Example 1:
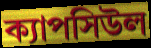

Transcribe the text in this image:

ক্যাপসিউল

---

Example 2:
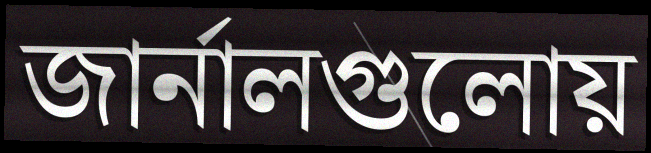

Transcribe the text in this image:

জার্নালগুলোয়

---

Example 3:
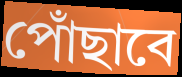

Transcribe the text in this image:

পোঁছাবে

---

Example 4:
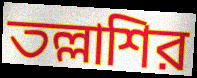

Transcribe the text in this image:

তল্লাশির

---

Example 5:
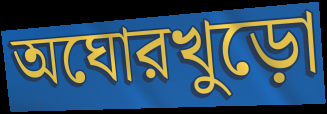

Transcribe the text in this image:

অঘোরখুড়ো